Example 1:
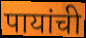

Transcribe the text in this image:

पायांची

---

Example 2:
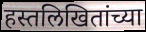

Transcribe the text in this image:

हस्तलिखितांच्या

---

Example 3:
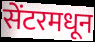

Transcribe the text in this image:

सेंटरमधून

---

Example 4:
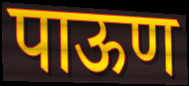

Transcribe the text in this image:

पाऊण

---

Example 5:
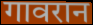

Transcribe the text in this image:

गावरान